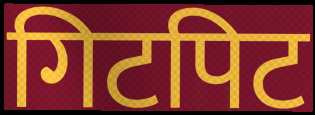
गिटपिट